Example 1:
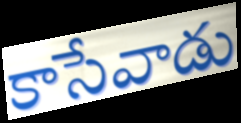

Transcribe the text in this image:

కాసేవాడు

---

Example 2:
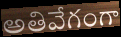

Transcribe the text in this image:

అతివేగంగా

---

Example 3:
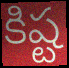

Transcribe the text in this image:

కిష్ట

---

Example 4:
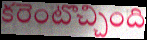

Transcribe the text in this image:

కరెంటొచ్చింది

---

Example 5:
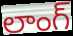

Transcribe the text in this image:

లాంగ్